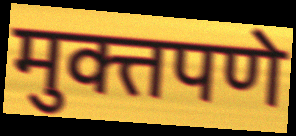
मुक्तपणे